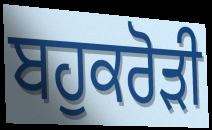
ਬਹੁਕਰੋਡ਼ੀ